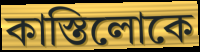
কাস্তিলোকে